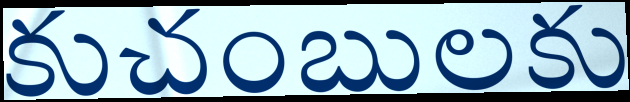
కుచంబులకు